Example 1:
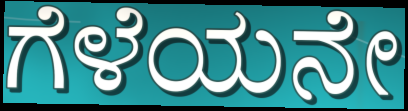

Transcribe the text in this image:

ಗೆಳೆಯನೇ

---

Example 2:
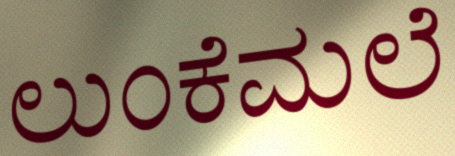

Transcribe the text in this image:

ಲುಂಕೆಮಲೆ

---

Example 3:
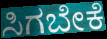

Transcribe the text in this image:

ಸಿಗಬೇಕೆ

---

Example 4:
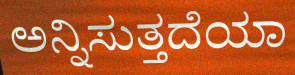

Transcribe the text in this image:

ಅನ್ನಿಸುತ್ತದೆಯಾ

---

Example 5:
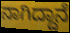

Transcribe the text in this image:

ನಾಗಿದ್ದಾನೆ